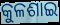
କୁଳଶାଇ